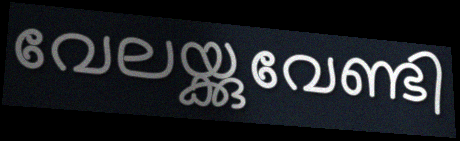
വേലയ്ക്കുവേണ്ടി